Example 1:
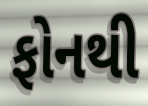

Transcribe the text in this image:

ફોનથી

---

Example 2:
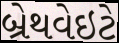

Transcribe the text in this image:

બ્રેથવેઇટે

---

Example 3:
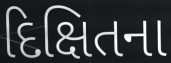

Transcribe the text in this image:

દિક્ષિતના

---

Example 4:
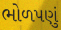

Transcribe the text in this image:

ભોળપણું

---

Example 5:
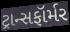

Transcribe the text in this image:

ટ્રાન્સફૉર્મર